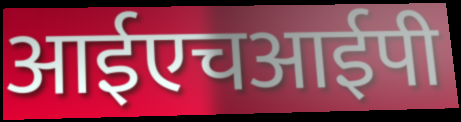
आईएचआईपी